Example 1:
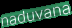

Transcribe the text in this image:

naduvana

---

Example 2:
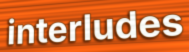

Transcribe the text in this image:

interludes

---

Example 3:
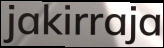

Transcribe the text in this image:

jakirraja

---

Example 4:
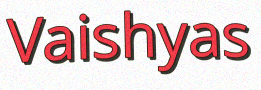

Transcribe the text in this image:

Vaishyas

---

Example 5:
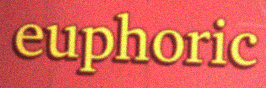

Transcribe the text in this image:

euphoric